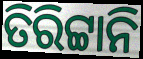
ତିରିଟ୍ଟାନି